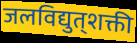
जलविद्युत्‌शक्ती